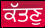
ਕੱਤਣੁ